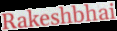
Rakeshbhai